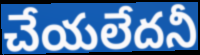
చేయలేదనీ